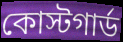
কোস্টগার্ড